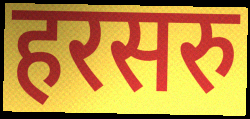
हरसरु